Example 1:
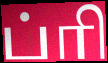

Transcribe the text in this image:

ப்ரி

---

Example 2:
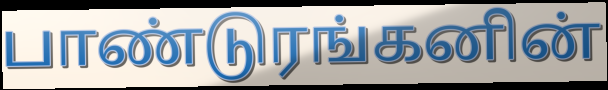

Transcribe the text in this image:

பாண்டுரங்கனின்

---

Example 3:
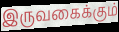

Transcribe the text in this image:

இருவகைக்கும்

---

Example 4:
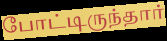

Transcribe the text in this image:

போட்டிருந்தார்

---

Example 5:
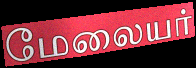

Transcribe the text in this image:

மேலையர்